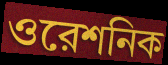
ওরেশনিক